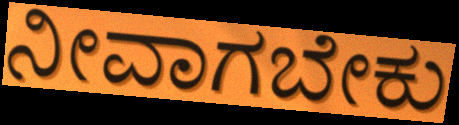
ನೀವಾಗಬೇಕು